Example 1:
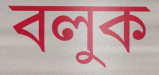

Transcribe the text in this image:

বলুক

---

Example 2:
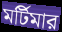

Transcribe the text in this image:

মর্টিমার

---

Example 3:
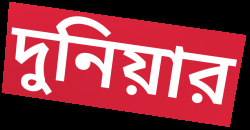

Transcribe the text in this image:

দুনিয়ার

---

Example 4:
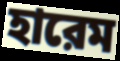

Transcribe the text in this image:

হারেম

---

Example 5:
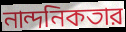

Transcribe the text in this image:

নান্দনিকতার